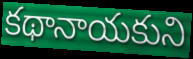
కథానాయకుని